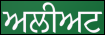
ਅਲੀਅਟ